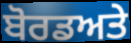
ਬੋਰਡਅਤੇ